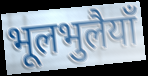
भूलभुलैयाँ